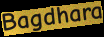
Bagdhara